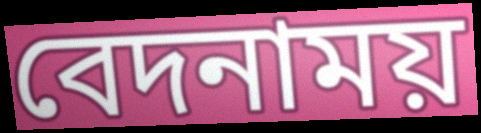
বেদনাময়